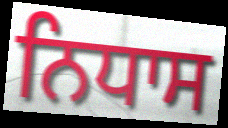
ਨਿਧਾਸ